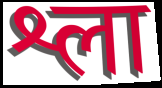
श्ला